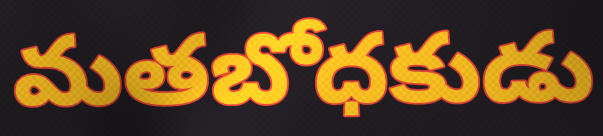
మతబోధకుడు